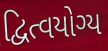
દ્વિત્વયોગ્ય